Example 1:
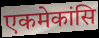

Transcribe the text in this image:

एकमेकांसि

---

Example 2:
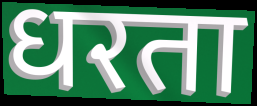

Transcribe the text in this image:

धरता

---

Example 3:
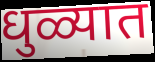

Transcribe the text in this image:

धुळ्यात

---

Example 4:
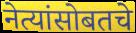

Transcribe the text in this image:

नेत्यांसोबतचे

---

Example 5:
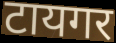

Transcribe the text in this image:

टायगर